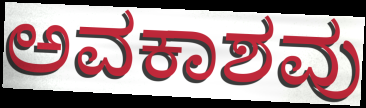
ಅವಕಾಶವು